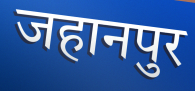
जहानपुर